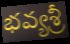
భవ్యశ్రీ